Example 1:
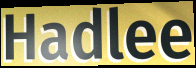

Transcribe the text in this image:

Hadlee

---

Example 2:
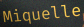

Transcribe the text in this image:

Miquelle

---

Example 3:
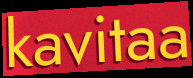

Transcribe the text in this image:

kavitaa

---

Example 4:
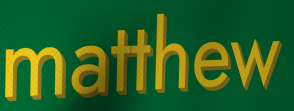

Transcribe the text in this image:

matthew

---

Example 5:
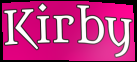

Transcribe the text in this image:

Kirby